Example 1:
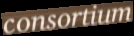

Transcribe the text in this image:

consortium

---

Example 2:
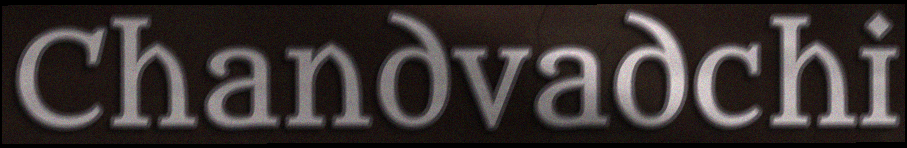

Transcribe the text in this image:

Chandvadchi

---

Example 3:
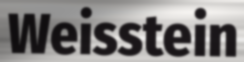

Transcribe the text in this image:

Weisstein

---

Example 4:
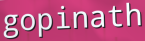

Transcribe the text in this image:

gopinath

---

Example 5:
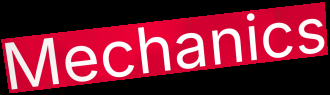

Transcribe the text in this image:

Mechanics